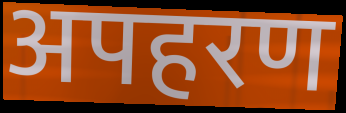
अपहरण